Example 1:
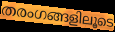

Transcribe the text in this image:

തരംഗങ്ങളിലൂടെ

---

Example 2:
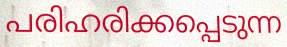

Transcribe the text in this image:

പരിഹരിക്കപ്പെടുന്ന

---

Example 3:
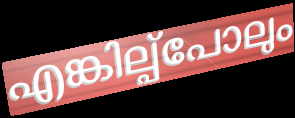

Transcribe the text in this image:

എങ്കില്പ്പോലും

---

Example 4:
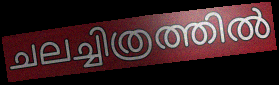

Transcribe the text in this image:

ചലച്ചിത്രത്തിൽ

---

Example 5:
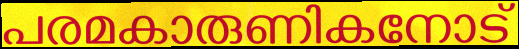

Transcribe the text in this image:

പരമകാരുണികനോട്